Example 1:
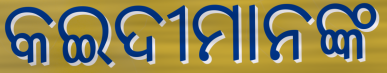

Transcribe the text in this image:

କଇଦୀମାନଙ୍କ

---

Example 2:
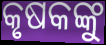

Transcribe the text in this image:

କୃଷକଙ୍କୁ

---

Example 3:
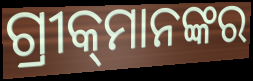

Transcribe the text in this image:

ଗ୍ରୀକ୍‌ମାନଙ୍କର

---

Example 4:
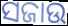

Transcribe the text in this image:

ସଜାଉ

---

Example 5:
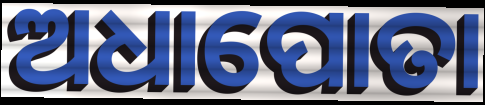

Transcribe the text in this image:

ଅଧାପୋତା